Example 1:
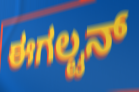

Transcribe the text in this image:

ಈಗಲ್ಟನ್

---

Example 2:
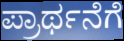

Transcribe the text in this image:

ಪ್ರಾರ್ಥನೆಗೆ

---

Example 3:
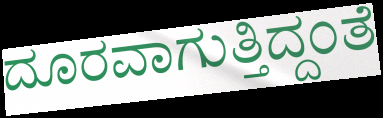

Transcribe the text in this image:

ದೂರವಾಗುತ್ತಿದ್ದಂತೆ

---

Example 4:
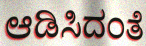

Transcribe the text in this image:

ಆಡಿಸಿದಂತೆ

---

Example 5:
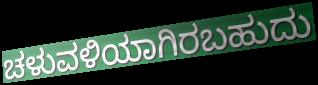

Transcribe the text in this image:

ಚಳುವಳಿಯಾಗಿರಬಹುದು